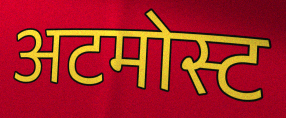
अटमोस्ट